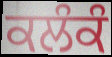
ਕਲੰਕੰ